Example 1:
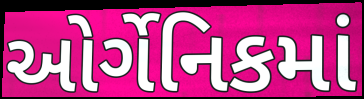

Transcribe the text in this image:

ઓર્ગેનિકમાં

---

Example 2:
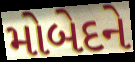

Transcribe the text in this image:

મોબેદને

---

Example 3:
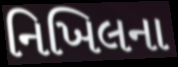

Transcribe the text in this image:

નિખિલના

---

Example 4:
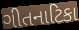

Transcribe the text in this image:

ગીતનાટિકા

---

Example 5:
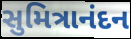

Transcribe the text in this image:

સુમિત્રાનંદન